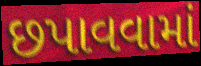
છપાવવામાં